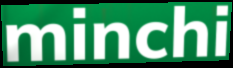
minchi